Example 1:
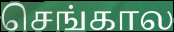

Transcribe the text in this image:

செங்கால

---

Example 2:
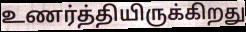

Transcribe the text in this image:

உணர்த்தியிருக்கிறது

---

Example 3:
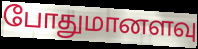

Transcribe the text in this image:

போதுமானளவு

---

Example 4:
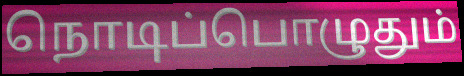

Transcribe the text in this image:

நொடிப்பொழுதும்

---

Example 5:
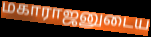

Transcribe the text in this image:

மகாராஜனுடைய